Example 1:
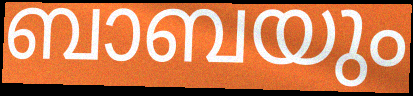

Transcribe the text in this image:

ബാബയും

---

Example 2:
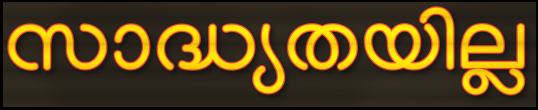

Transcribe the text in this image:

സാദ്ധ്യതയില്ല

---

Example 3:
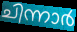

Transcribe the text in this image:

ചിന്നാർ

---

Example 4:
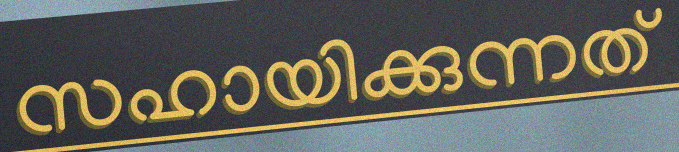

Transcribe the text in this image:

സഹായിക്കുന്നത്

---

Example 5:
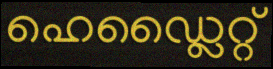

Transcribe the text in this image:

ഹെഡ്ലൈറ്റ്